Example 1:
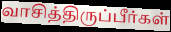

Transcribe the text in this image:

வாசித்திருப்பீர்கள்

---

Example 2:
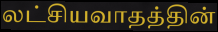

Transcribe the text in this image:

லட்சியவாதத்தின்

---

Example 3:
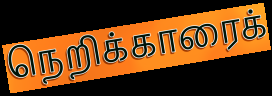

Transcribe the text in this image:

நெறிக்காரைக்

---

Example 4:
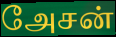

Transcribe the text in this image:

அேசன்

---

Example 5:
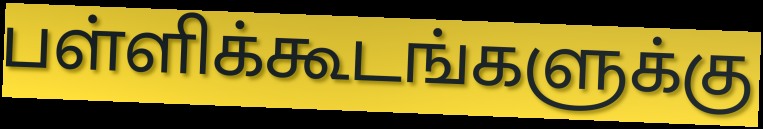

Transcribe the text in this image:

பள்ளிக்கூடங்களுக்கு